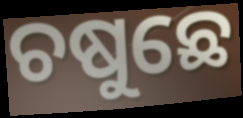
ଚଷୁଛେ